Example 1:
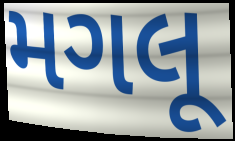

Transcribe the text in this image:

મગલૂ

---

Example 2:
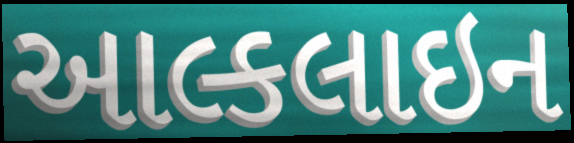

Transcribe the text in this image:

આલ્કલાઇન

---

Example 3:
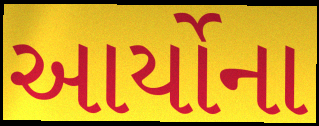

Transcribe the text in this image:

આર્યોના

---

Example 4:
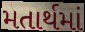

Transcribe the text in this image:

મતાર્થમાં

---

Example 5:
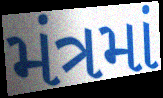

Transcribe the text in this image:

મંત્રમાં